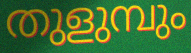
തുളുമ്പും